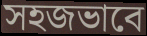
সহজভাবে